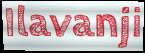
Ilavanji